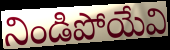
నిండిపోయేవి